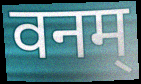
वनम्